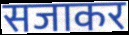
सजाकर